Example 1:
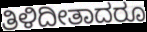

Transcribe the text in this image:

ತಿಳಿದೀತಾದರೂ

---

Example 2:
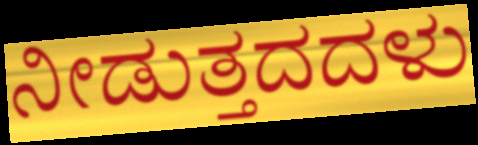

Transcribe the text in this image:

ನೀಡುತ್ತದದಳು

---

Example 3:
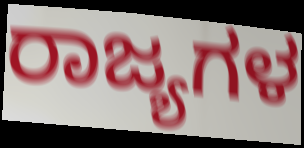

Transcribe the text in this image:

ರಾಜ್ಯಗಳ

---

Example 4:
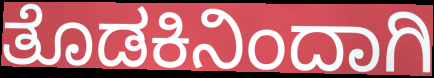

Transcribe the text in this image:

ತೊಡಕಿನಿಂದಾಗಿ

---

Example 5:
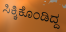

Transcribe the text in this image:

ಸಿಕ್ಕಿಕೊಂಡಿದ್ದ